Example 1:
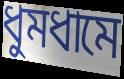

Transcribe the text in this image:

ধুমধামে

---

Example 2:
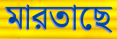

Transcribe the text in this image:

মারতাছে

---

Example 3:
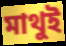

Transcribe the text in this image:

মাথুই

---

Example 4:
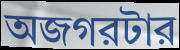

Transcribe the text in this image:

অজগরটার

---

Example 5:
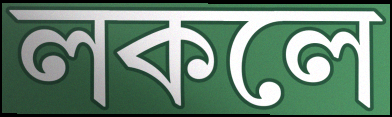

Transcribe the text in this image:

লকলে